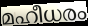
മഹീധരം